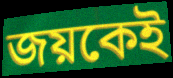
জয়কেই